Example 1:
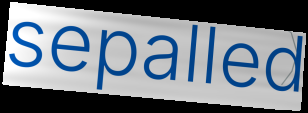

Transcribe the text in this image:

sepalled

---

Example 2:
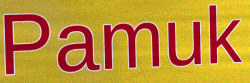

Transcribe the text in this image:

Pamuk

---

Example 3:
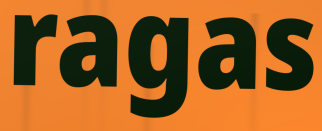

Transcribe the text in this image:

ragas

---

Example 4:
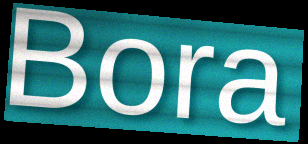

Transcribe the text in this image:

Bora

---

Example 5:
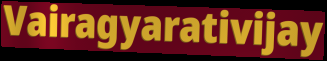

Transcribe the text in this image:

Vairagyarativijay